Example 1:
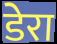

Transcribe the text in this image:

डेरा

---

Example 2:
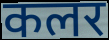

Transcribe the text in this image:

कलर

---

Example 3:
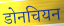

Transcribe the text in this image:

डोनचियन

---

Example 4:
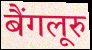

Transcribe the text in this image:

बैंगलूरु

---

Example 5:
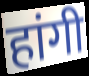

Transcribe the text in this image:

हांगी